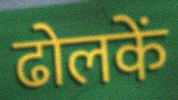
ढोलकें